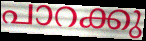
പാറക്കു